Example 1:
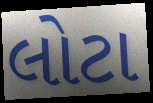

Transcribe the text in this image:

લોટા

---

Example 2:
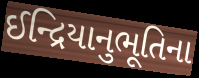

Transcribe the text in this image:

ઈન્દ્રિયાનુભૂતિના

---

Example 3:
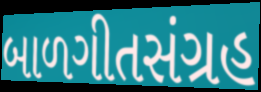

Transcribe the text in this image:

બાળગીતસંગ્રહ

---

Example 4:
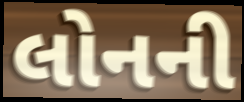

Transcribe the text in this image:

લોનની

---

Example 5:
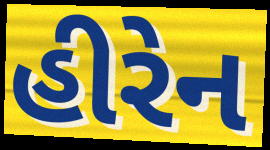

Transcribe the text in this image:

હીરેન